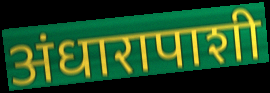
अंधारापाशी